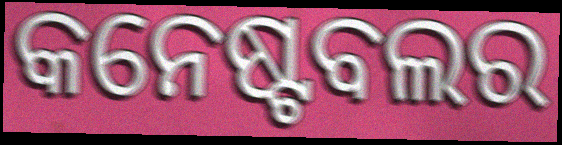
କନେଷ୍ଟବଲର